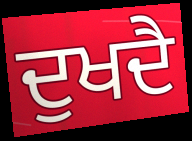
ਦੁਖਦੈ